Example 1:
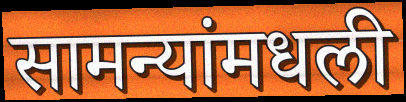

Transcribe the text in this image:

सामन्यांमधली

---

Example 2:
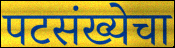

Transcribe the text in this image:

पटसंख्येचा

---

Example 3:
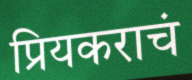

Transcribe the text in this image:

प्रियकराचं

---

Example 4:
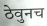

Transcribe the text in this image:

ठेवुनच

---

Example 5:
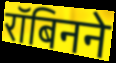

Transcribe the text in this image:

रॉबिनने